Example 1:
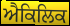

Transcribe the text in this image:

ਐਕਿਲਿਕ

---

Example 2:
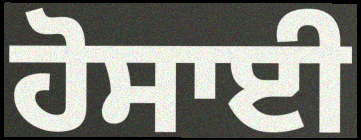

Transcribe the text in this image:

ਹੋਸਾਈ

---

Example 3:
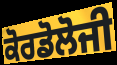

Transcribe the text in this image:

ਕੋਰਡੋਲੋਜੀ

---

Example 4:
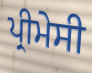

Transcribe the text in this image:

ਪ੍ਰੀਮੇਸੀ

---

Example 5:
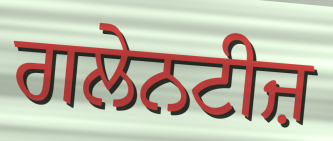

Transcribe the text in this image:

ਗਲੇਨਟੀਜ਼